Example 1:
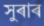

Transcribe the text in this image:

সুৰাৰ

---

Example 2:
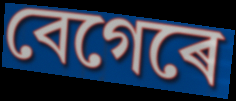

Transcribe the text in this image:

বেগেৰে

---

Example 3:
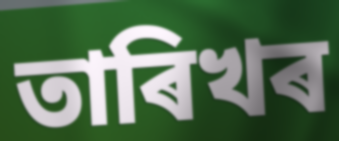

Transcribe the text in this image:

তাৰিখৰ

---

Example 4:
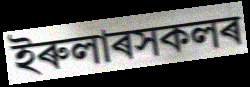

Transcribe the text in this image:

ইৰুলাৰসকলৰ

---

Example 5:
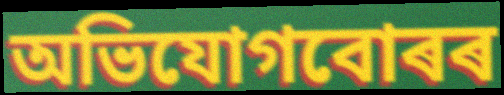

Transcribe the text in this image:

অভিযোগবোৰৰ